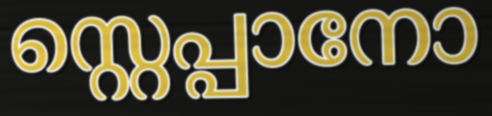
സ്റ്റെപ്പാനോ